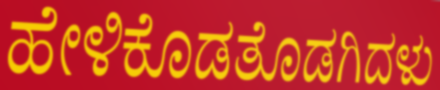
ಹೇಳಿಕೊಡತೊಡಗಿದಳು